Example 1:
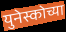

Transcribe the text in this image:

युनेस्कोच्या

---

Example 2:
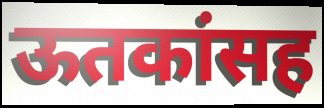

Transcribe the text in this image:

ऊतकांसह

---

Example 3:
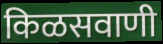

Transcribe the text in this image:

किळसवाणी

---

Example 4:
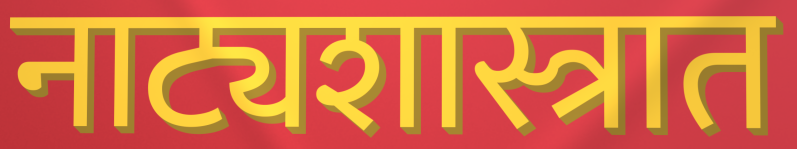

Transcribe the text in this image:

नाट्यशास्त्रात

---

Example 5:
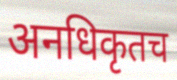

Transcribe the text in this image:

अनधिकृतच